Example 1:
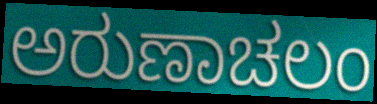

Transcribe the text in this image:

ಅರುಣಾಚಲಂ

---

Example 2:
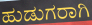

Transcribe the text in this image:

ಹುಡುಗರಾಗಿ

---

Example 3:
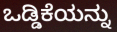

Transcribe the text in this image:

ಒಡ್ಡಿಕೆಯನ್ನು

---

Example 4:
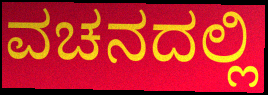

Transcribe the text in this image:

ವಚನದಲ್ಲಿ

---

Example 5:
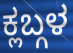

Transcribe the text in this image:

ಕ್ಲಬ್ಗಳ